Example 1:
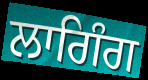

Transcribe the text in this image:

ਲਾਗਿੰਗ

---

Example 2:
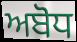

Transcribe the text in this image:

ਅਬੋਧ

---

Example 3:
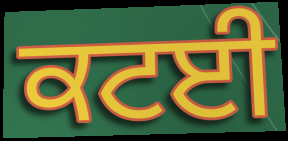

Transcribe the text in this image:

ਕਟਈ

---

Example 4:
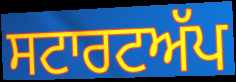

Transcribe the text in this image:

ਸਟਾਰਟਅੱਪ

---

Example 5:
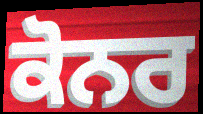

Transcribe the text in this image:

ਕੋਨਰ